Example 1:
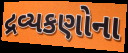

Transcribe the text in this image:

દ્રવ્યકણોના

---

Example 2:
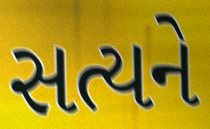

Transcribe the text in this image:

સત્યને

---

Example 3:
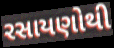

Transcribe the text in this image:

રસાયણોથી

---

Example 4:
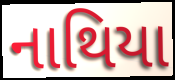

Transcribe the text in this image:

નાથિયા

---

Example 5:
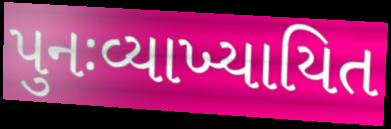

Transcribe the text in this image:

પુનઃવ્યાખ્યાયિત